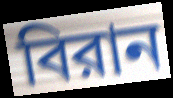
বিরান